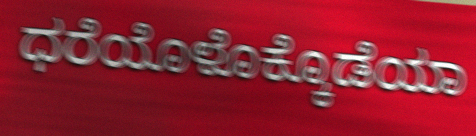
ಧರೆಯೊಳೊಕ್ಕೊಡೆಯಾ